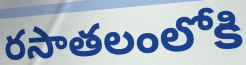
రసాతలంలోకి